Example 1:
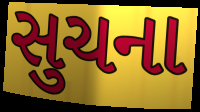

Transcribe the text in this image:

સુચના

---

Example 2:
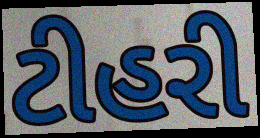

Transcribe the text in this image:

ટીહરી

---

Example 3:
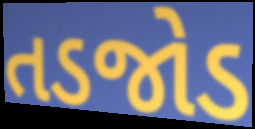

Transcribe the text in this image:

તડજોડ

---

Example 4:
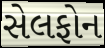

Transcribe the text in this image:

સેલફોન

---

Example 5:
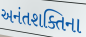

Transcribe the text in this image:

અનંતશક્તિના